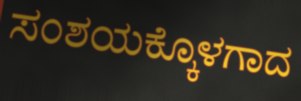
ಸಂಶಯಕ್ಕೊಳಗಾದ